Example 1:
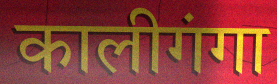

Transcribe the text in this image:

कालीगंगा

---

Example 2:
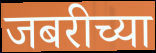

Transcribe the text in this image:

जबरीच्या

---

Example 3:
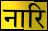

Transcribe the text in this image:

नारि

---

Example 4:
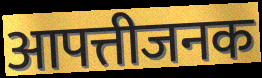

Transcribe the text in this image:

आपत्तीजनक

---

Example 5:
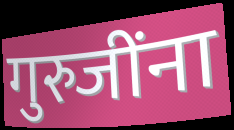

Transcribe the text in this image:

गुरुजींना